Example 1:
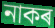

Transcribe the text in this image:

নাকৰ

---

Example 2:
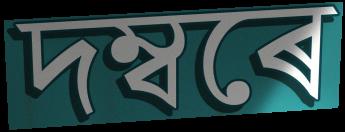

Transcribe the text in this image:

দম্বৰে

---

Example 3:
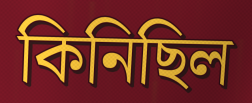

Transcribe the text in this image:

কিনিছিল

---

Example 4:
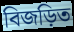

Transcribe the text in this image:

বিজড়িত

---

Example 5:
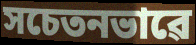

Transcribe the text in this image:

সচেতনভাৱে